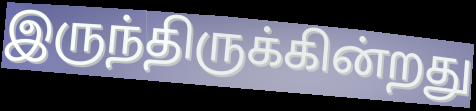
இருந்திருக்கின்றது